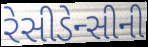
રેસીડેન્સીની